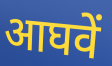
आघवें